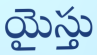
యైస్తు